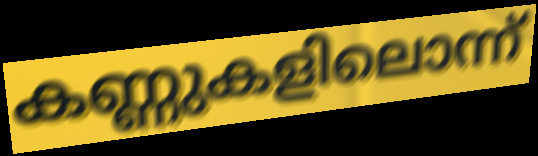
കണ്ണുകളിലൊന്ന്